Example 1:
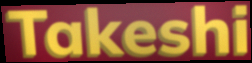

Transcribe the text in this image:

Takeshi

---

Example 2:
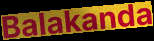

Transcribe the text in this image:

Balakanda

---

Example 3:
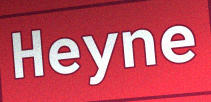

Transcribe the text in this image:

Heyne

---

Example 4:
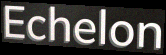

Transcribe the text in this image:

Echelon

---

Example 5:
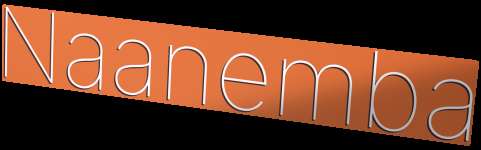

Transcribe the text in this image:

Naanemba